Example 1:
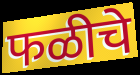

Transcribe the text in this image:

फळीचे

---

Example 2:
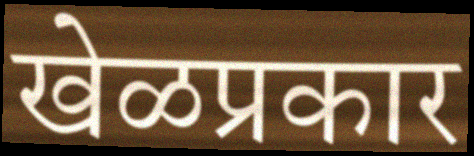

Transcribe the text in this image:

खेळप्रकार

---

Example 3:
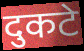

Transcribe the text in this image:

दुकटे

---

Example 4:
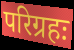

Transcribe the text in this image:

परिग्रहः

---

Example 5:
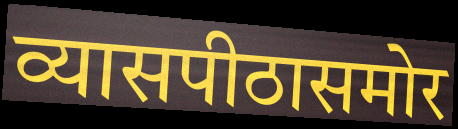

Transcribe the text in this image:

व्यासपीठासमोर